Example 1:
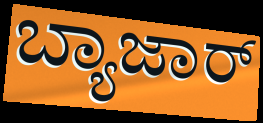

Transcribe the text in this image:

ಬ್ಯಾಜಾರ್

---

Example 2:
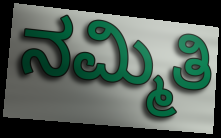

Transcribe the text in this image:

ನಮ್ಮಿತಿ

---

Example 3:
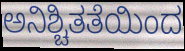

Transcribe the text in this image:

ಅನಿಶ್ಚಿತತೆಯಿಂದ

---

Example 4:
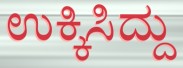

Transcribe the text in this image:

ಉಕ್ಕಿಸಿದ್ದು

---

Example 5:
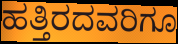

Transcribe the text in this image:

ಹತ್ತಿರದವರಿಗೂ